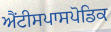
ਐਂਟੀਸਪਾਸਪੋਡਿਕ